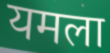
यमला